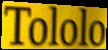
Tololo